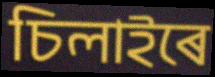
চিলাইৰে